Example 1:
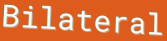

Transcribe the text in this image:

Bilateral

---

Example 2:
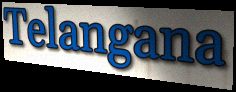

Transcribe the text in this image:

Telangana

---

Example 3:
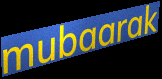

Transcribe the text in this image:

mubaarak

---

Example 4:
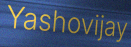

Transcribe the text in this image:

Yashovijay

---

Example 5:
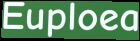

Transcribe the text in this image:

Euploea